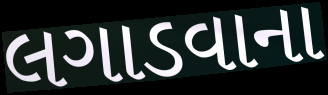
લગાડવાના